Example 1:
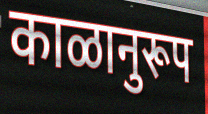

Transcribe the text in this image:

काळानुरूप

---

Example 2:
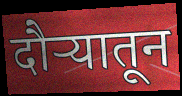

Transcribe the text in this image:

दौऱ्यातून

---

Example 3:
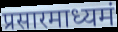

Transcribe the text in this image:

प्रसारमाध्यमं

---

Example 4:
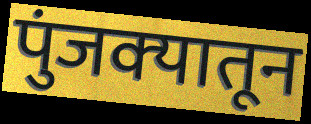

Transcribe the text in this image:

पुंजक्यातून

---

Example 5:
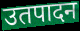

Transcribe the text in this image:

उतपादन